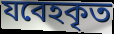
যবেহকৃত